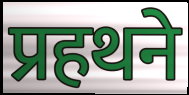
प्रहथने